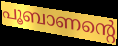
പൂബാണന്റെ